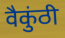
वैकुंठी